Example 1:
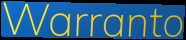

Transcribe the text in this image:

Warranto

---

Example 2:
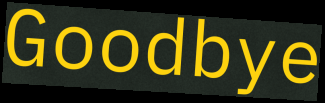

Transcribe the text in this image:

Goodbye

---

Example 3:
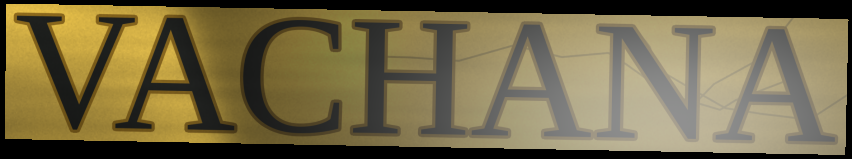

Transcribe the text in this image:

VACHANA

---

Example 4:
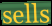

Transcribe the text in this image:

sells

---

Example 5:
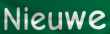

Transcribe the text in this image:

Nieuwe